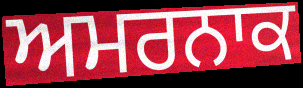
ਅਮਰਨਾਕ